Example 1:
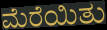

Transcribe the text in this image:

ಮೆರೆಯಿತು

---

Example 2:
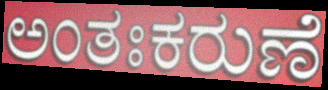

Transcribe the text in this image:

ಅಂತಃಕರುಣೆ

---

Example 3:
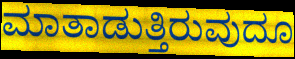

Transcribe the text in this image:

ಮಾತಾಡುತ್ತಿರುವುದೂ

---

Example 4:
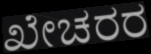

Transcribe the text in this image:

ಖೇಚರರ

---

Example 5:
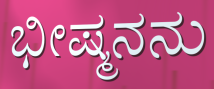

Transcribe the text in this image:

ಭೀಷ್ಮನನು